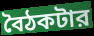
বৈঠকটার